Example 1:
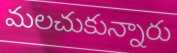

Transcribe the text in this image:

మలచుకున్నారు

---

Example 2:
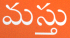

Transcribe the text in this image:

మస్తు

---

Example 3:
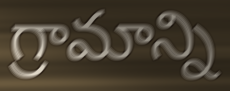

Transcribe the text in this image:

గ్రామాన్ని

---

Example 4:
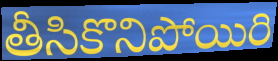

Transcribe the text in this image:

తీసికొనిపోయిరి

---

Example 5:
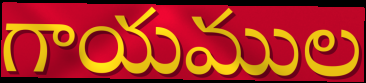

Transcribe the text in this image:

గాయముల